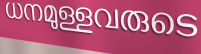
ധനമുള്ളവരുടെ